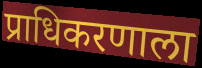
प्राधिकरणाला